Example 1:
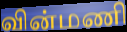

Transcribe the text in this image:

வின்மணி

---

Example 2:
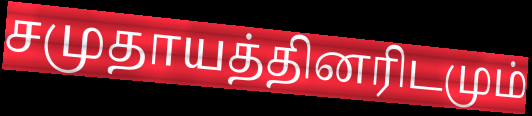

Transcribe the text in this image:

சமுதாயத்தினரிடமும்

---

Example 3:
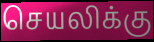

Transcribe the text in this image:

செயலிக்கு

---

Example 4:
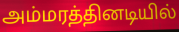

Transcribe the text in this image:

அம்மரத்தினடியில்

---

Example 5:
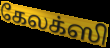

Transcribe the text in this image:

கேலக்ஸி